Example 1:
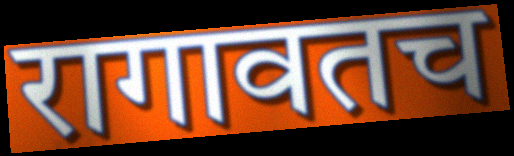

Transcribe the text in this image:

रागावतच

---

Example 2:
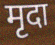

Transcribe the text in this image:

मृदा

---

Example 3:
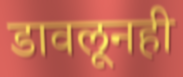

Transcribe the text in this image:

डावलूनही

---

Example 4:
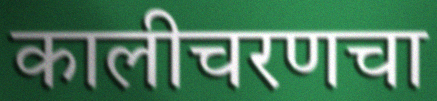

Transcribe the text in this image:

कालीचरणचा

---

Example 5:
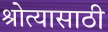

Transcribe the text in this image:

श्रोत्यासाठी